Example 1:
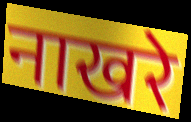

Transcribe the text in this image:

नाखरे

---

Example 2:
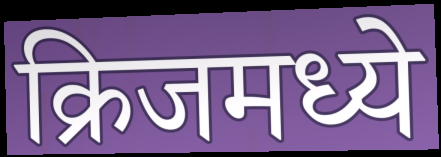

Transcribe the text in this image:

क्रिजमध्ये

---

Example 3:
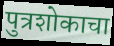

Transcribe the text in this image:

पुत्रशोकाचा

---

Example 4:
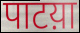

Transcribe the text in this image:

पाटय़ा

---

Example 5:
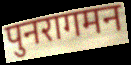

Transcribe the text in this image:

पुनरागमन